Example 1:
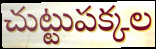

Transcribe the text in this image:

చుట్టుపక్కల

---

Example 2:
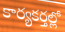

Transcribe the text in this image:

కార్యకర్తల్లో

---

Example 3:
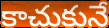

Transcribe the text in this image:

కాచుకునే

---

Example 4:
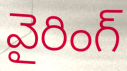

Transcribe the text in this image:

వైరింగ్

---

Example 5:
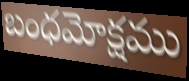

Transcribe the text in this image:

బంధమోక్షము